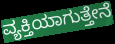
ವ್ಯಕ್ತಿಯಾಗುತ್ತೇನೆ